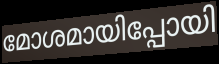
മോശമായിപ്പോയി